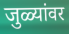
जुळ्यांवर